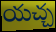
యచ్చ